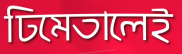
ঢিমেতালেই